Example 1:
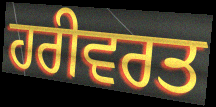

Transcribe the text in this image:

ਹਰੀਵਰਤ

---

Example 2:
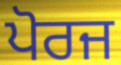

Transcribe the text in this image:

ਪੋਰਜ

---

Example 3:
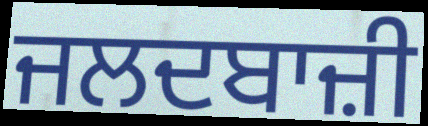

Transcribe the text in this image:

ਜਲਦਬਾਜ਼ੀ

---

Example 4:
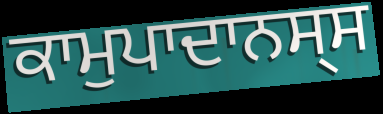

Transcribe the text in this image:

ਕਾਮੁਪਾਦਾਨਸ੍ਸ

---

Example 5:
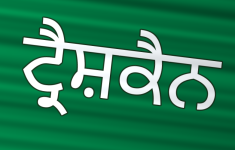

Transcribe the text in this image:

ਟ੍ਰੈਸ਼ਕੈਨ